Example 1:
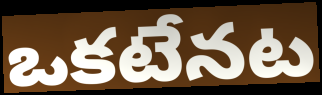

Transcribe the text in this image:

ఒకటేనట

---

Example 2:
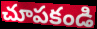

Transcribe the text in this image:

చూపకండి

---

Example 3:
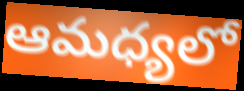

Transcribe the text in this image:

ఆమధ్యలో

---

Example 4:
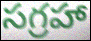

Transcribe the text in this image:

సగ్రహా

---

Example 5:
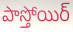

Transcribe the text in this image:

పాస్తోయిర్